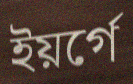
ইয়র্গে